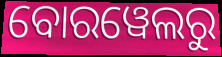
ବୋରୱେଲରୁ